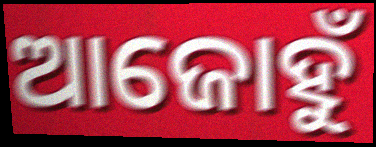
ଆଜୋହୁଁ